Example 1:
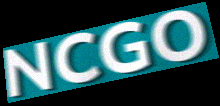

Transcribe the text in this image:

NCGO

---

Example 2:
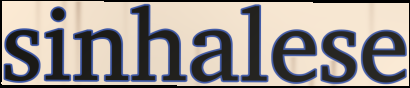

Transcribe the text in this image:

sinhalese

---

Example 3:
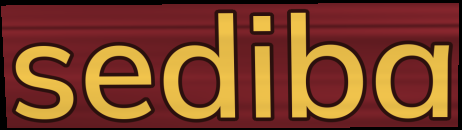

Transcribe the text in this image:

sediba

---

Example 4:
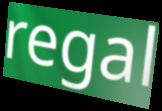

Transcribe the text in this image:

regal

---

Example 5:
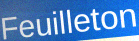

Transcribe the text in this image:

Feuilleton